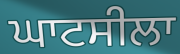
ਘਾਟਸੀਲਾ